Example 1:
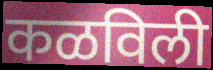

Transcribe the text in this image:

कळविली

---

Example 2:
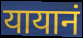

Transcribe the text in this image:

यायानं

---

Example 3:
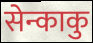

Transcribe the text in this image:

सेन्काकु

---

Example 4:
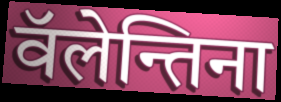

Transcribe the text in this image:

वॅलेन्तिना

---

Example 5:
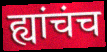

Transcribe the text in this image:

ह्यांचंच